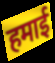
हमाई